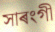
সাৰংগী